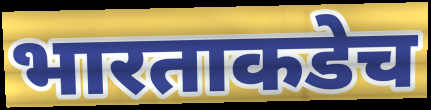
भारताकडेच